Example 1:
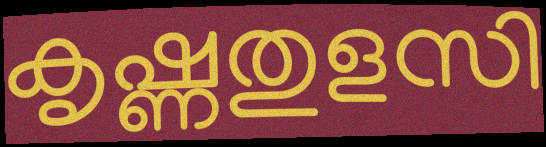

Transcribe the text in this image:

കൃഷ്ണതുളസി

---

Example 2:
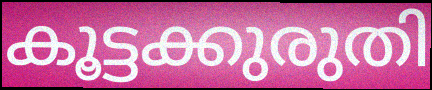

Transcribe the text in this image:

കൂട്ടക്കുരുതി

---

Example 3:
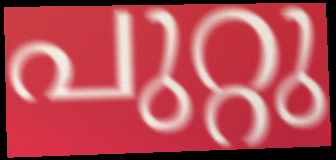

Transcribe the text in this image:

പുറ്റു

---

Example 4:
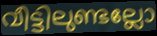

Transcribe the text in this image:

വീട്ടിലുണ്ടല്ലോ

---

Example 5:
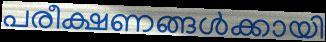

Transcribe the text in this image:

പരീക്ഷണങ്ങൾക്കായി